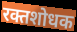
रक्तशोधक